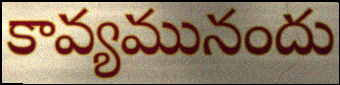
కావ్యమునందు